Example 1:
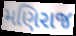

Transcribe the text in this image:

મણિરાજ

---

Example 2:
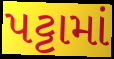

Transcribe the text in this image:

પટ્ટામાં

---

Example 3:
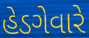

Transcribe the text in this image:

હેડગેવારે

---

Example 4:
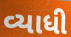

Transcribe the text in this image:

વ્યાધી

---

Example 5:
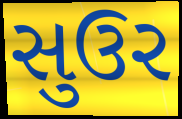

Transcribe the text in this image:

સુઉર